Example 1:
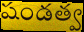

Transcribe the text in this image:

షండత్వ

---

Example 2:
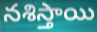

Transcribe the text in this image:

నశిస్తాయి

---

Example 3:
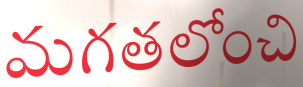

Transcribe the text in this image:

మగతలోంచి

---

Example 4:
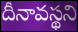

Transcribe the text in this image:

దీనావస్థని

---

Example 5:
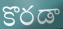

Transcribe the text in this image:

కొరడా